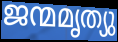
ജന്മമൃത്യു